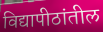
विद्यापीठांतील